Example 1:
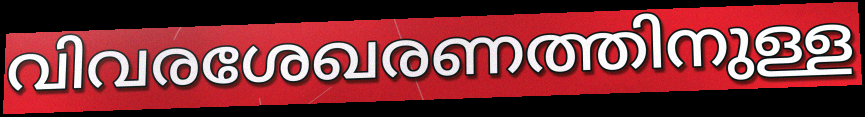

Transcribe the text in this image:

വിവരശേഖരണത്തിനുള്ള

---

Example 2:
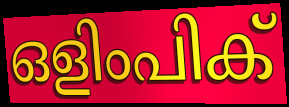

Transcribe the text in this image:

ഒളിംപിക്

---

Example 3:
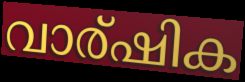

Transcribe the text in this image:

വാര്ഷിക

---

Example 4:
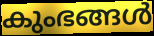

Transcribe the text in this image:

കുംഭങ്ങൾ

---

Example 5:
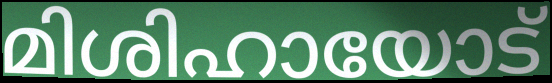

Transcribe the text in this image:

മിശിഹായോട്